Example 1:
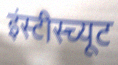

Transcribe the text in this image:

इंस्टीस्च्यूट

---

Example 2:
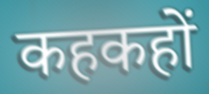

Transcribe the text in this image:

कहकहों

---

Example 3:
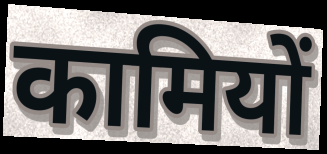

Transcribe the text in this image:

कामियों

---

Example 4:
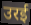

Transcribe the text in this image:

उरई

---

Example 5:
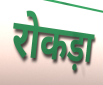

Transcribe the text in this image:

रोकड़ा